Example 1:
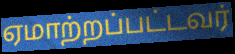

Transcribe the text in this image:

ஏமாற்றப்பட்டவர்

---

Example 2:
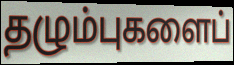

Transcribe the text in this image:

தழும்புகளைப்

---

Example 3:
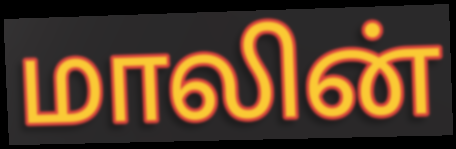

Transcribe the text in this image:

மாலின்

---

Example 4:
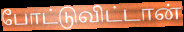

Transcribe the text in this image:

போட்டுவிட்டான்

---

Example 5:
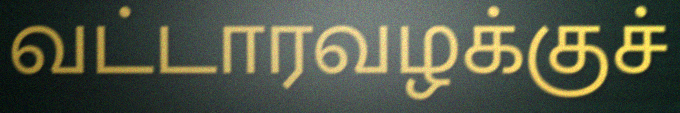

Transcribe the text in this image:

வட்டாரவழக்குச்